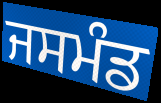
ਜਸਮੰਡ